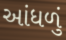
આંધળું